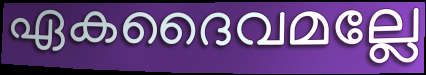
ഏകദൈവമല്ലേ